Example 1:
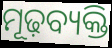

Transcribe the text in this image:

ମୂଢ଼ବ୍ୟକ୍ତି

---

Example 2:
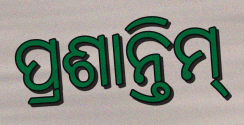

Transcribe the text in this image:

ପ୍ରଶାନ୍ତିମ୍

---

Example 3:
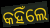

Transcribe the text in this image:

କହିଁଲେ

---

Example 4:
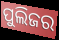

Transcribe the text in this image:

ପୁଲିଜର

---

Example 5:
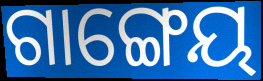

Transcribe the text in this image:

ଗାଙ୍ଗେୟ